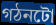
গঠনটো